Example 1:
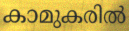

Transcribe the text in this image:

കാമുകരിൽ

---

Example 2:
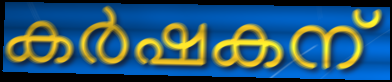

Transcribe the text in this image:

കർഷകന്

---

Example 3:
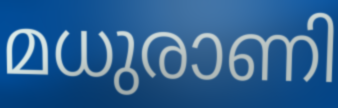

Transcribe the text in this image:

മധുരാണി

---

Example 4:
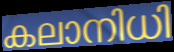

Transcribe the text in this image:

കലാനിധി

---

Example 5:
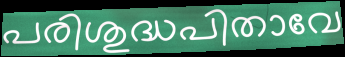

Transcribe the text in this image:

പരിശുദ്ധപിതാവേ